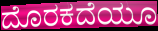
ದೊರಕದೆಯೂ